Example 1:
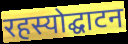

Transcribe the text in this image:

रहस्योद्घाटन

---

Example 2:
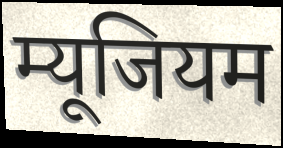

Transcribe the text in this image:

म्यूजियम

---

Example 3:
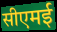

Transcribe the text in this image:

सीएमई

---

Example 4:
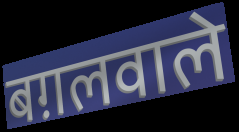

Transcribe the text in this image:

बग़लवाले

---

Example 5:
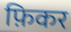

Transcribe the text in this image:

फ़िकर